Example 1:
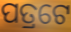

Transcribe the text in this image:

ପତ୍ରଟେ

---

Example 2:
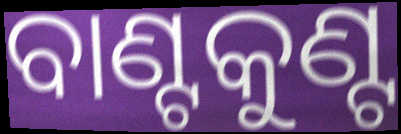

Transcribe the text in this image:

ବାଣ୍ଟକୁଣ୍ଟ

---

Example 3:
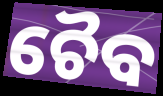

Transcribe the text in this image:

ଚୈବ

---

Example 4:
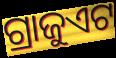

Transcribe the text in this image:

ଗ୍ରାଜୁଏଟ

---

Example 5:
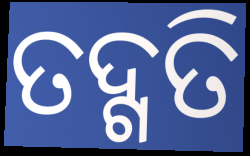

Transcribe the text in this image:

ତଦ୍ଗତି